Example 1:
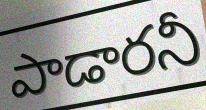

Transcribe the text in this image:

పాడారనీ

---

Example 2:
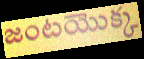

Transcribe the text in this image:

జంటయొక్క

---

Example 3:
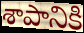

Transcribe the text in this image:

శాపానికి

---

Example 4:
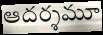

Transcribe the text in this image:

ఆదర్శమూ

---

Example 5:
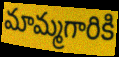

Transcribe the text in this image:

మామ్మగారికి